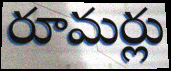
రూమర్లు